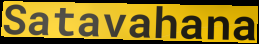
Satavahana